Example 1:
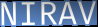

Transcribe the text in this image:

NIRAV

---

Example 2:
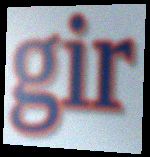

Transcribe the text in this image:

gir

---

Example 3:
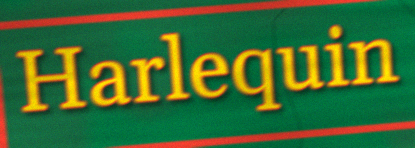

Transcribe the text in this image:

Harlequin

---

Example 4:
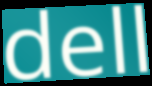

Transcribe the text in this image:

dell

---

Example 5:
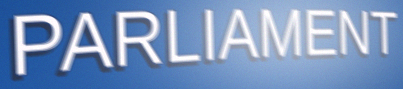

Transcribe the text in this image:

PARLIAMENT